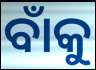
ବାଁକୁ